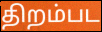
திறம்பட